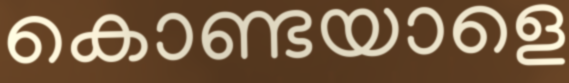
കൊണ്ടയാളെ